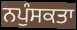
ਨਪੁੰਸਕਤਾ